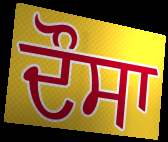
ਦੌਸਾ